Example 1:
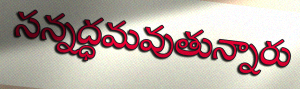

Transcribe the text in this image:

సన్నద్ధమవుతున్నారు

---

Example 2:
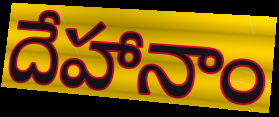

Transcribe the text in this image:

దేహానాం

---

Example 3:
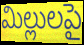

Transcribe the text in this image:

మిల్లులపై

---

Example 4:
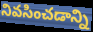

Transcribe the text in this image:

నివసించడాన్ని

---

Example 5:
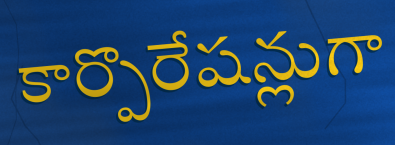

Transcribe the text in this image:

కార్పొరేషన్లుగా